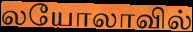
லயோலாவில்